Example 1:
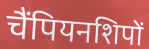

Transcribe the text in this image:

चैंपियनशिपों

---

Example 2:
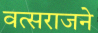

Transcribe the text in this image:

वत्सराजने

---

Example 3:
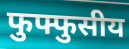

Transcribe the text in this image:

फुफ्फुसीय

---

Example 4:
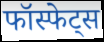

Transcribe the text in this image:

फॉस्फेट्स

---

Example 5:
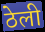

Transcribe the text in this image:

ठेली